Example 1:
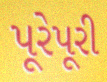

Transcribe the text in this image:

પૂરેપૂરી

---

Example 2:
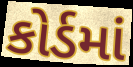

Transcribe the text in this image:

કોર્ડમાં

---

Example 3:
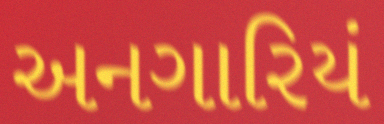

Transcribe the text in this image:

અનગારિયં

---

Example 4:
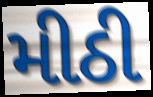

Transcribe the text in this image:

મીઠી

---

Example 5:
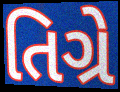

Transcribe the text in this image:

તિગ્રે